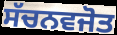
ਸੱਚਨਵਜੋਤ